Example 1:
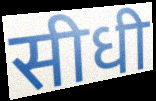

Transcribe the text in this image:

सीधी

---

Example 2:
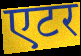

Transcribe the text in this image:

एटर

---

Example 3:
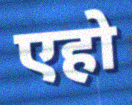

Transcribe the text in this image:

एहो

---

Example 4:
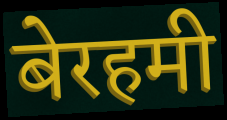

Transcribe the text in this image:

बेरहमी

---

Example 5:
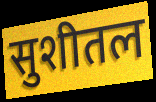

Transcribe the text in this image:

सुशीतल